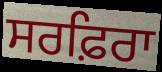
ਸਰਫ਼ਿਰਾ